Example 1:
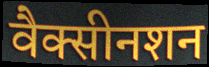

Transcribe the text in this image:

वैक्सीनशन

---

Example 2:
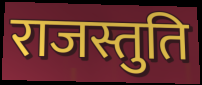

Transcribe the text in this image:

राजस्तुति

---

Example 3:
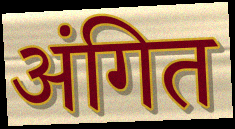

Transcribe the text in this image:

अंगित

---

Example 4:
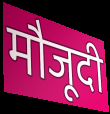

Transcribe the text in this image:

मौजूदी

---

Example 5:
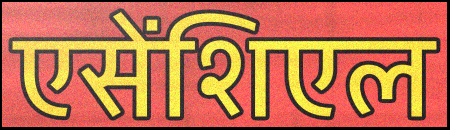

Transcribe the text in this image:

एसेंशिएल